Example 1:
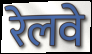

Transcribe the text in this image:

रेलवे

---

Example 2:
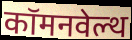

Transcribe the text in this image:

कॉमनवेल्थ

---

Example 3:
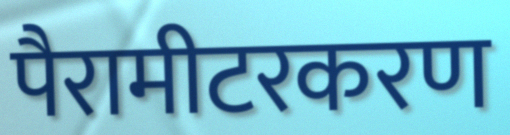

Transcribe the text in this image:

पैरामीटरकरण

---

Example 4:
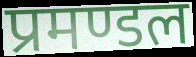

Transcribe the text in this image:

प्रमण्डल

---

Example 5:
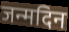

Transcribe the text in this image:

जन्मदिन